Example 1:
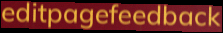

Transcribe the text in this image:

editpagefeedback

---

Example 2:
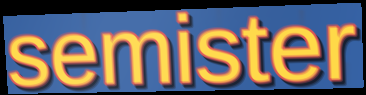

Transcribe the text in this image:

semister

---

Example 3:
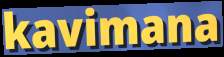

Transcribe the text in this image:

kavimana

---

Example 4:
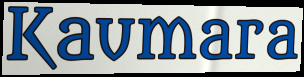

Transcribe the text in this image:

Kaumara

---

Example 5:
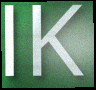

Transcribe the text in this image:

IK